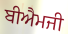
ਬੀਐਮਜੀ